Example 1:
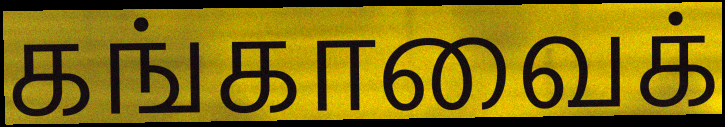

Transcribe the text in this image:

கங்காவைக்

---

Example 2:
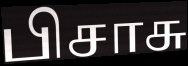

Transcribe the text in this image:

பிசாசு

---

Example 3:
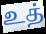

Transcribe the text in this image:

உத்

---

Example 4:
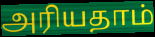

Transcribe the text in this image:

அரியதாம்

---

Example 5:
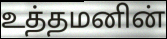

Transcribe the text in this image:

உத்தமனின்